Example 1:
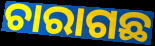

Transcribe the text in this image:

ଚାରାଗଛ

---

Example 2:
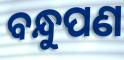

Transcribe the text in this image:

ବନ୍ଧୁପଣ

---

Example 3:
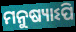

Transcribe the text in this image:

ମନୁଷ୍ୟାଽପି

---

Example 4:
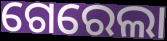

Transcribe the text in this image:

ଗେରେଲା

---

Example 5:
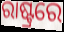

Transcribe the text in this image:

ରାଷ୍ଟ୍ରରେ